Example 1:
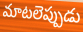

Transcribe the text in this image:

మాటలెప్పుడు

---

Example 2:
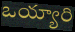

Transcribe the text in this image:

ఒయ్యారి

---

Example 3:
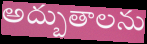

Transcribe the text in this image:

అద్బుతాలను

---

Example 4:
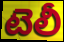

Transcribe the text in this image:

టెలీ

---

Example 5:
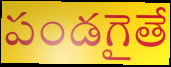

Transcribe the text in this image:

పండగైతే